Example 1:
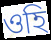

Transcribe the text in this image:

ওহি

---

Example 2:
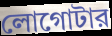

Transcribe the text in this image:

লোগোটার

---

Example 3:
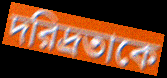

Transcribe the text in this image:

দরিদ্রতাকে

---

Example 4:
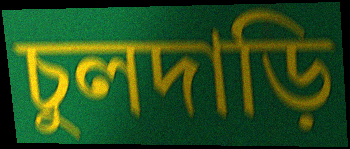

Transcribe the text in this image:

চুলদাড়ি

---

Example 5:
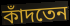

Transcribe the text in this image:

কাঁদতেন